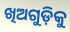
ଖିଅଗୁଡ଼ିକୁ